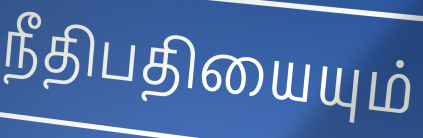
நீதிபதியையும்